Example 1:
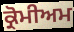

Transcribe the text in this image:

ਕ੍ਰੋਮੀਅਮ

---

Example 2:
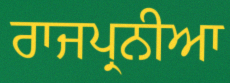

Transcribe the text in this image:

ਰਾਜਪ੍ਰਨੀਆ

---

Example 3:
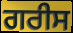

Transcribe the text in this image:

ਗਰੀਸ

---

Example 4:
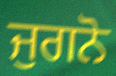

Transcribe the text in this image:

ਜੁਗਨੋ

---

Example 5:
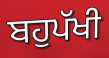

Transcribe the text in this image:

ਬਹੁਪੱਖੀ